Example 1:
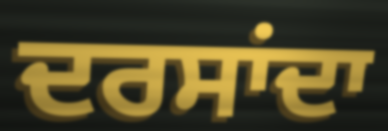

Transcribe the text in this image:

ਦਰਸਾਂਦਾ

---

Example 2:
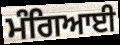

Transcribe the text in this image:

ਮੰਗਿਆਈ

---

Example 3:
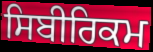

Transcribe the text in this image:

ਸਿਬੀਰਿਕਮ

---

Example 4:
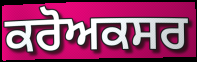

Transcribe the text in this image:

ਕਰੋਅਕਸਰ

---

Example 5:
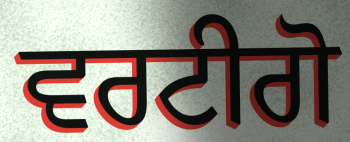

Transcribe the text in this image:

ਵਰਟੀਗੋ